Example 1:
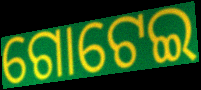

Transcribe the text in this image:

ଗୋଟେଇ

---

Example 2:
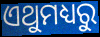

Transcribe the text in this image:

ଏଥୁମଧ୍ୟରୁ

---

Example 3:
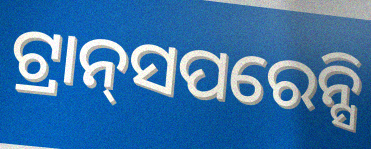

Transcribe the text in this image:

ଟ୍ରାନ୍‌ସପରେନ୍ସି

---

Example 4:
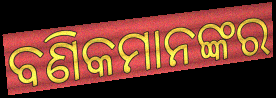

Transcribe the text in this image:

ବଣିକମାନଙ୍କର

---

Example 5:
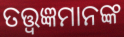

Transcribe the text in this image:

ତତ୍ତ୍ୱଜ୍ଞମାନଙ୍କ